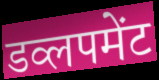
डव्लपमेंट